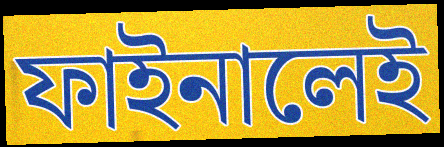
ফাইনালেই